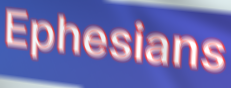
Ephesians